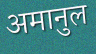
अमानुल